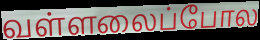
வள்ளலைப்போல